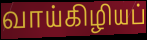
வாய்கிழியப்